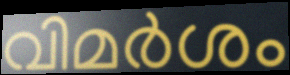
വിമർശം